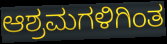
ಆಶ್ರಮಗಳಿಗಿಂತ